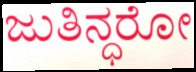
ಜುತಿನ್ಧರೋ